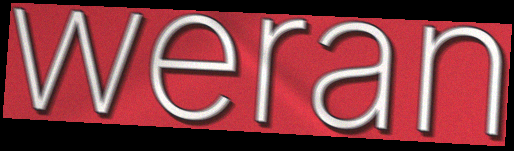
weran